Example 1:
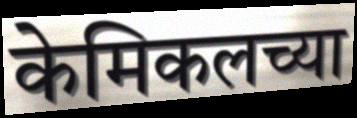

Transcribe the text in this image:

केमिकलच्या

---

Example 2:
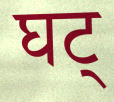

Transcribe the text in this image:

घट्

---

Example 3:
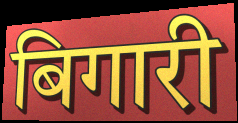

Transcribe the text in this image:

बिगारी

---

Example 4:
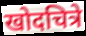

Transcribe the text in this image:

खोदचित्रे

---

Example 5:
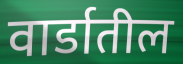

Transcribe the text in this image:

वार्डातील